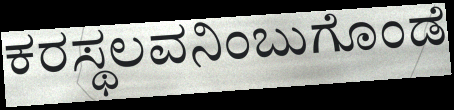
ಕರಸ್ಥಲವನಿಂಬುಗೊಂಡೆ